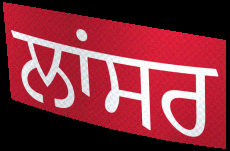
ਲਾਂਸਰ